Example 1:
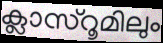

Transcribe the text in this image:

ക്ലാസ്റൂമിലും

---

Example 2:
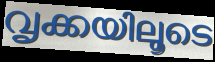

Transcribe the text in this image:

വൃക്കയിലൂടെ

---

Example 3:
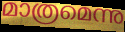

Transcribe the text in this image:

മാത്രമെന്നു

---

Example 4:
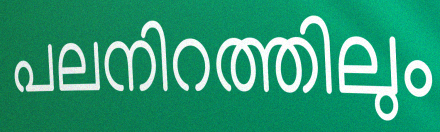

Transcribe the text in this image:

പലനിറത്തിലും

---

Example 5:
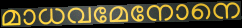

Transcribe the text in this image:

മാധവമേനോനെ